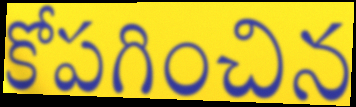
కోపగించిన